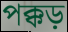
পক্কড়